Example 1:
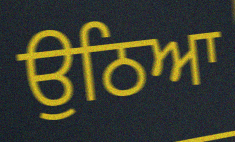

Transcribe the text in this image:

ਉਠਿਆ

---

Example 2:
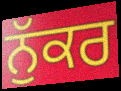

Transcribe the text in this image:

ਨੁੱਕਰ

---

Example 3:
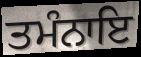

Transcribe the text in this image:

ਤਮੰਨਾਇ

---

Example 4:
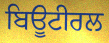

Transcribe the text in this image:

ਬਿਊਟੀਰਲ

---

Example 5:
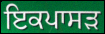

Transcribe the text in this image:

ਇਕਪਾਸੜ